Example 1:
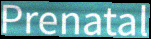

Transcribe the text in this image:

Prenatal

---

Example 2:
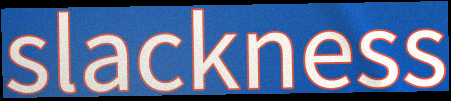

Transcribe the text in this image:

slackness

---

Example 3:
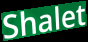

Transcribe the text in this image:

Shalet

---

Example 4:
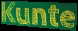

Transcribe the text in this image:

Kunte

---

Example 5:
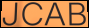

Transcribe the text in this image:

JCAB